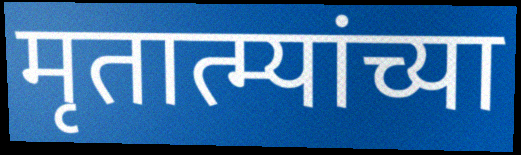
मृतात्म्यांच्या